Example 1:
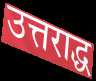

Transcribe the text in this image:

उत्तराद्ध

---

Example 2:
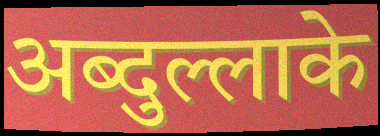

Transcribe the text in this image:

अब्दुल्लाके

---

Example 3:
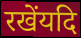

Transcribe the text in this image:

रखेंयदि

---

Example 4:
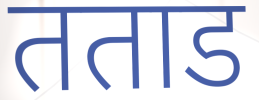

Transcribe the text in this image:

तताड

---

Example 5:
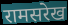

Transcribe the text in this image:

रामसरेख